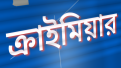
ক্রাইমিয়ার